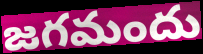
జగమందు